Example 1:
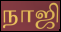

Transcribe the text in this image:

நாஜி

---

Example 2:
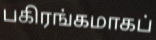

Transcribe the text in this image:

பகிரங்கமாகப்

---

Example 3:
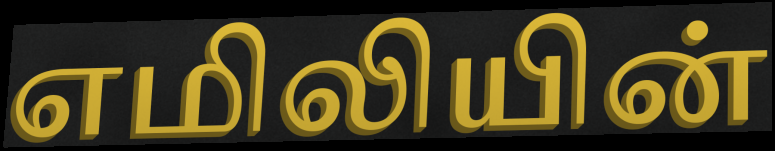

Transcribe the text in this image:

எமிலியின்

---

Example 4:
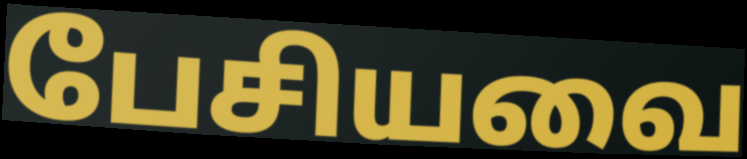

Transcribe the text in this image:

பேசியவை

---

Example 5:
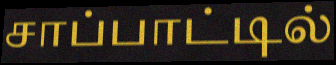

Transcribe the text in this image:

சாப்பாட்டில்